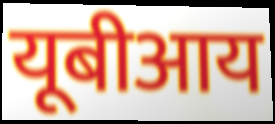
यूबीआय